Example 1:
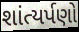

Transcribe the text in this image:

શાંત્યર્પણો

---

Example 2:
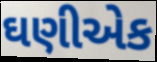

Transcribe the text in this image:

ઘણીએક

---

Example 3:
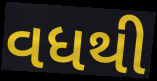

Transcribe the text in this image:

વધથી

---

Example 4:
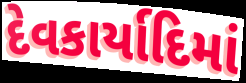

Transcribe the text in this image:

દેવકાર્યાદિમાં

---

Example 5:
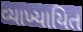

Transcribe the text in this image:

વ્યાખ્યાયિત